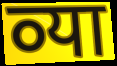
व्‍या